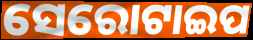
ସେରୋଟାଇପ